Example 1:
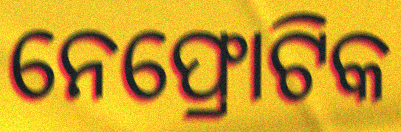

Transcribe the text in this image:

ନେଫ୍ରୋଟିକ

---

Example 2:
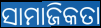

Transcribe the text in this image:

ସାମାଜିକତା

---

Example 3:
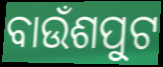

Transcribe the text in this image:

ବାଉଁଶପୁଟ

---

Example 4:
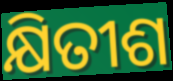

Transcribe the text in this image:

କ୍ଷିତୀଶ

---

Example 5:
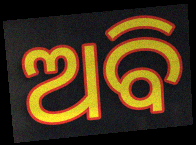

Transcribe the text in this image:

ଅବି